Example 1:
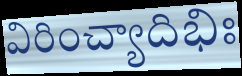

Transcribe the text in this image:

విరించ్యాదిభిః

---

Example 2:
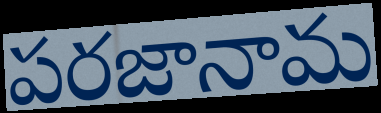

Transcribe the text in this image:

పరజానామ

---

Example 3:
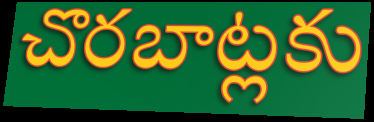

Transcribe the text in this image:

చొరబాట్లకు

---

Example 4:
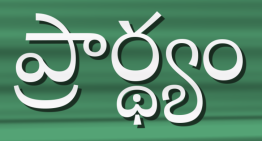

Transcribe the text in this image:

ప్రార్థ్యం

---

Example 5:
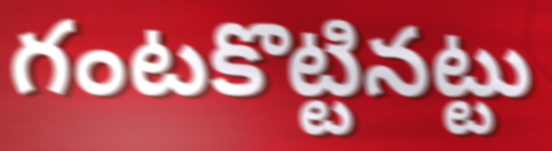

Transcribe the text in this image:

గంటకొట్టినట్టు